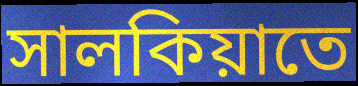
সালকিয়াতে